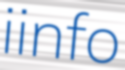
iinfo